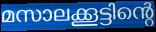
മസാലക്കൂട്ടിന്റെ